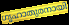
ഗൃഹാതുരനായി